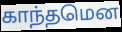
காந்தமென